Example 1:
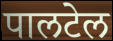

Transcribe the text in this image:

पालटेल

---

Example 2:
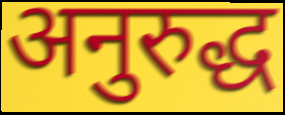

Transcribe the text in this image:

अनुरुद्ध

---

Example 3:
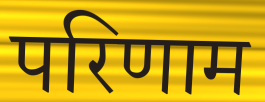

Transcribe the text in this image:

परिणाम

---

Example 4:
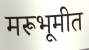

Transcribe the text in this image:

मरूभूमीत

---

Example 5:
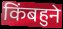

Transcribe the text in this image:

किंबहुने